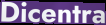
Dicentra